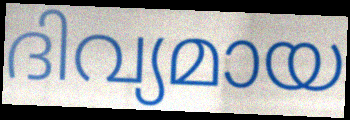
ദിവ്യമായ